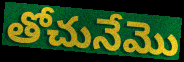
తోచునేమొ